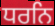
ਧਰਨਿ